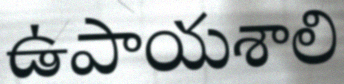
ఉపాయశాలి